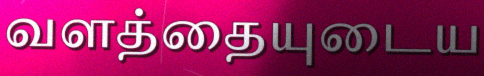
வளத்தையுடைய